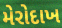
મેરોદાખ